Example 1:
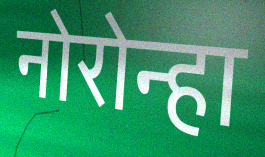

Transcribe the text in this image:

नोरोन्हा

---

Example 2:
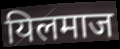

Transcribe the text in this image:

यिलमाज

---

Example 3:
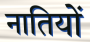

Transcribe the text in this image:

नातियों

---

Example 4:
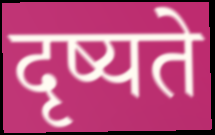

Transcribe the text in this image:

दृष्यते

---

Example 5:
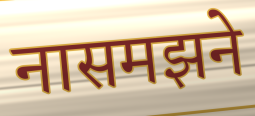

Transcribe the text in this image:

नासमझने